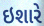
ઇશારે